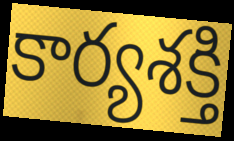
కార్యశక్తి